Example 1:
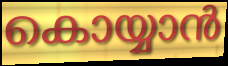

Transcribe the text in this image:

കൊയ്യാൻ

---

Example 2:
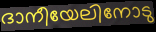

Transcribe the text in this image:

ദാനീയേലിനോടു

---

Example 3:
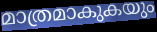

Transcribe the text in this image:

മാത്രമാകുകയും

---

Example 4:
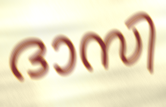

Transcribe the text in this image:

ദാസി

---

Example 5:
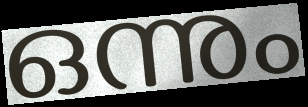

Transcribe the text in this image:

ഒന്നും